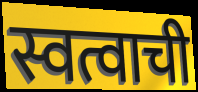
स्वत्वाची